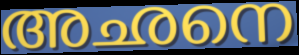
അഛനെ